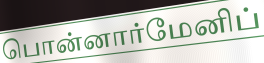
பொன்னார்மேனிப்